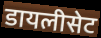
डायलीसेट